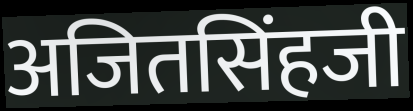
अजितसिंहजी